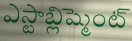
ఎస్టాబ్లిష్మెంట్